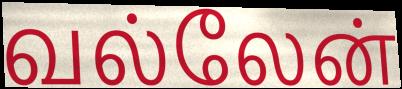
வல்லேன்